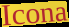
Icona